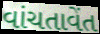
વાંચતાવેંત